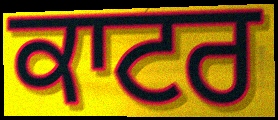
ਕਾਟਰ